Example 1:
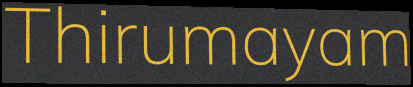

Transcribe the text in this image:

Thirumayam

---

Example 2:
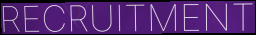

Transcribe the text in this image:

RECRUITMENT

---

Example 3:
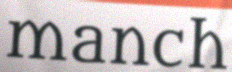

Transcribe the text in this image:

manch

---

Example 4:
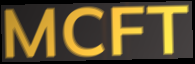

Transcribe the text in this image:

MCFT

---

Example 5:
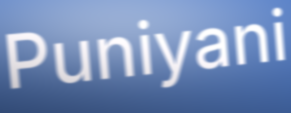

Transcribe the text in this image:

Puniyani